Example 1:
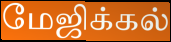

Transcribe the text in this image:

மேஜிக்கல்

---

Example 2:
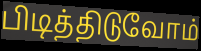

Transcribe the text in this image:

பிடித்திடுவோம்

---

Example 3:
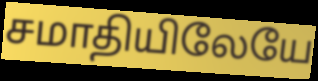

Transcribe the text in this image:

சமாதியிலேயே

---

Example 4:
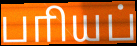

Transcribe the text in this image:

பரியப்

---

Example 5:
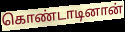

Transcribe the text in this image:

கொண்டாடினான்